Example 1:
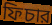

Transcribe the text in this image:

ফিচার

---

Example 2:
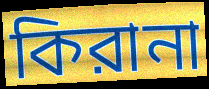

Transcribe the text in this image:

কিরানা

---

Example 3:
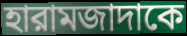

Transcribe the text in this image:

হারামজাদাকে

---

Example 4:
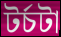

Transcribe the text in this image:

টর্চটা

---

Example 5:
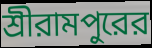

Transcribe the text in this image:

শ্রীরামপুরের